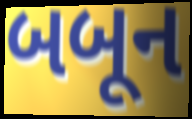
બબૂન